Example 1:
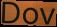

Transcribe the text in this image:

Dov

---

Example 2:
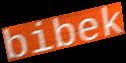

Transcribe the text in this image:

bibek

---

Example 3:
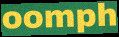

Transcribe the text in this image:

oomph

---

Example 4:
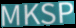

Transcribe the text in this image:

MKSP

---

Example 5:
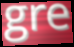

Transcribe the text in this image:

gre